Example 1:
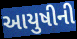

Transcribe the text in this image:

આયુષીની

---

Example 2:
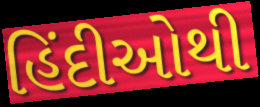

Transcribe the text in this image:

હિંદીઓથી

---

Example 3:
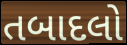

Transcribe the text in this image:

તબાદલો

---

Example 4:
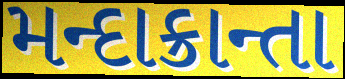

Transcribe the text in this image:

મન્દાક્રાન્તા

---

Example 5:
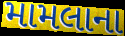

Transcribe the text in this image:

મામલાના